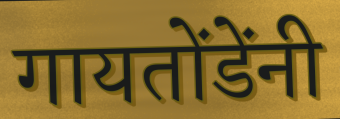
गायतोंडेंनी